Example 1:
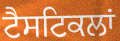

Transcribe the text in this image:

ਟੈਸਟਿਕਲਾਂ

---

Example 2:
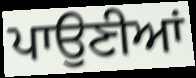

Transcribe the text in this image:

ਪਾਉਣੀਆਂ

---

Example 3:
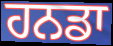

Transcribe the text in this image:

ਹਨਡਾ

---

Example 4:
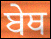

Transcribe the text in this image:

ਬੇਥ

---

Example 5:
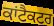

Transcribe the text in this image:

ਕਾਂਟੈਕਟਰ